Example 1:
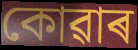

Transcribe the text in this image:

কোৱাৰ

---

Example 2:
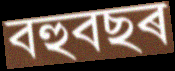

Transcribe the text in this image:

বহুবছৰ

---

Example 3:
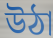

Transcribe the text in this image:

উঠা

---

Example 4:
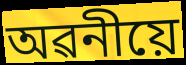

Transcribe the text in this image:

অৱনীয়ে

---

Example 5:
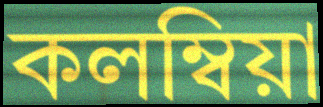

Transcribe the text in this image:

কলম্বিয়া